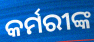
କର୍ମରୀଙ୍କ